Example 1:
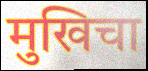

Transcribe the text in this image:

मुखिचा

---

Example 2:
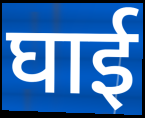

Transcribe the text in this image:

घाई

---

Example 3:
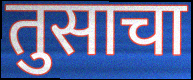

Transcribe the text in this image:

तुसाचा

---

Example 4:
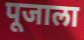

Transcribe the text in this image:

पूजाला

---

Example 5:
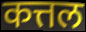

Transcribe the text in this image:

कत्तल